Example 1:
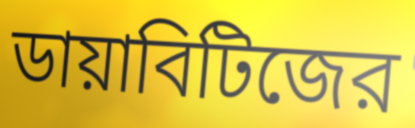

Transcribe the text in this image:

ডায়াবিটিজের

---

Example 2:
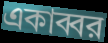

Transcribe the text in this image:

একাব্বর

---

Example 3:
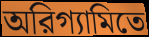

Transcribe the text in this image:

অরিগ্যামিতে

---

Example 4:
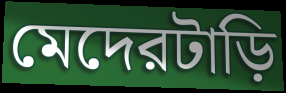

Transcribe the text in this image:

মেদেরটাড়ি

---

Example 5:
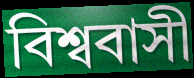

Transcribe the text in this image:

বিশ্ববাসী